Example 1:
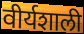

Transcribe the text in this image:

वीर्यशाली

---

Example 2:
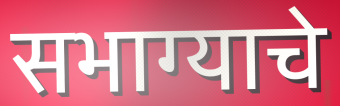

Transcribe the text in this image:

सभाग्याचे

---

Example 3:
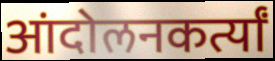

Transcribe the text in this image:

आंदोलनकर्त्यां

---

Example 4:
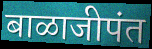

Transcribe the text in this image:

बाळाजीपंत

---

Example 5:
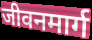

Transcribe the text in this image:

जीवनमार्ग